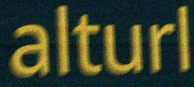
alturl